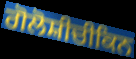
ਗੋਲੋਸ਼ੀਚੀਕਿਨ